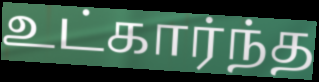
உட்கார்ந்த